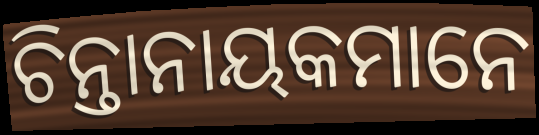
ଚିନ୍ତାନାୟକମାନେ